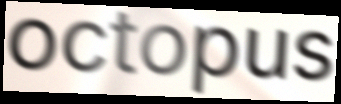
octopus